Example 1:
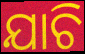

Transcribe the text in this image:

ଯାଚି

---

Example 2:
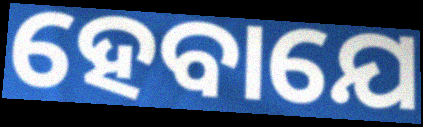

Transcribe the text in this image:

ହେବାଯେ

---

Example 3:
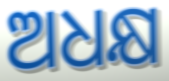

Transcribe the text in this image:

ଅଧକ୍ଷ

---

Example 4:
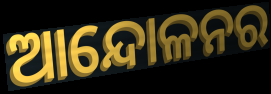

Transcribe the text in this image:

ଆନ୍ଦୋଳନର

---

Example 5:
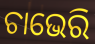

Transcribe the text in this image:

ଚାଭେରି